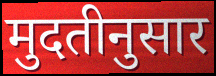
मुदतीनुसार